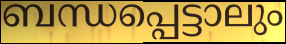
ബന്ധപ്പെട്ടാലും